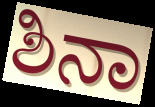
ಶಿನಾ